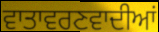
ਵਾਤਾਵਰਣਵਾਦੀਆਂ